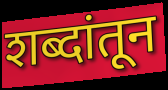
शब्दांतून